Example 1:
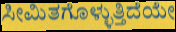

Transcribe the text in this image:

ಸೀಮಿತಗೊಳ್ಳುತ್ತಿದೆಯೇ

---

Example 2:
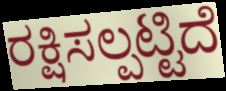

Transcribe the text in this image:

ರಕ್ಷಿಸಲ್ಪಟ್ಟಿದೆ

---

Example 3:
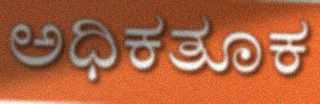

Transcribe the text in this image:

ಅಧಿಕತೂಕ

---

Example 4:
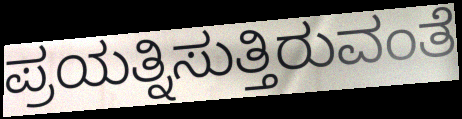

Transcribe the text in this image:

ಪ್ರಯತ್ನಿಸುತ್ತಿರುವಂತೆ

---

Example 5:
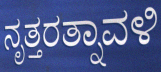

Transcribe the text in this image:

ನೃತ್ತರತ್ನಾವಳಿ